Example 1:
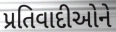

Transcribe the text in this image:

પ્રતિવાદીઓને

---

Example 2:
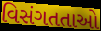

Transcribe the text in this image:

વિસંગતતાઓ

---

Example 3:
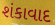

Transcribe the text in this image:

શંકાવાદ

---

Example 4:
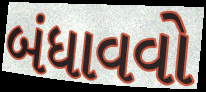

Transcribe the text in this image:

બંધાવવો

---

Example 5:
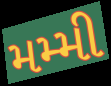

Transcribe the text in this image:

મમ્મી